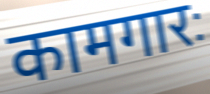
कामगारः